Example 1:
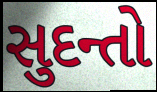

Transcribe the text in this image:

સુદન્તો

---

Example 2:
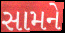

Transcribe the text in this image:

સામને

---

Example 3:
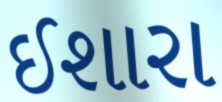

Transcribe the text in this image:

ઈશારા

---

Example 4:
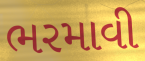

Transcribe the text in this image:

ભરમાવી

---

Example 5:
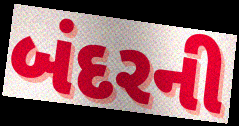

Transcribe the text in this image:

બંદરની